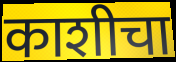
काशीचा